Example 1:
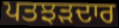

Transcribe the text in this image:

ਪਤਝੜਦਾਰ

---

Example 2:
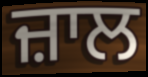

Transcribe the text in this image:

ਜ਼ਾਲ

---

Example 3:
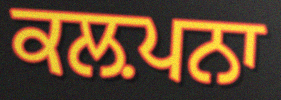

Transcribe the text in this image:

ਕਲ਼ਪਨਾ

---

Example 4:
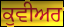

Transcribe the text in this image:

ਕੁਵੀਅਰ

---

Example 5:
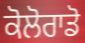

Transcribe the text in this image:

ਕੋਲੋਰਾਡੋ